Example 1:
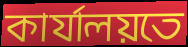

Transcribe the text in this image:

কাৰ্যালয়তে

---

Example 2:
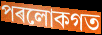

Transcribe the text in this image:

পৰলোকগত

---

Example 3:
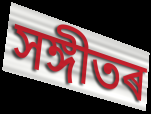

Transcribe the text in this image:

সঙ্গীতৰ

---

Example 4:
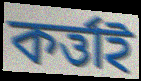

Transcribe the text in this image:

কৰ্ত্তাই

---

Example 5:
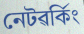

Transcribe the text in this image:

নেটৱৰ্কিং